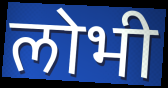
लोभी